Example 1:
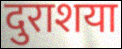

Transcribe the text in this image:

दुराशया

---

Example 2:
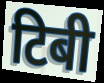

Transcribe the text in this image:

टिबी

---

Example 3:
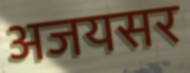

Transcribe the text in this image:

अजयसर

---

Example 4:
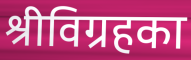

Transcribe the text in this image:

श्रीविग्रहका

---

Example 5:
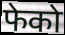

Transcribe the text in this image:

फेको